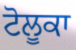
ਟੋਲੂਕਾ